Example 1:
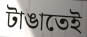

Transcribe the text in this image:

টাঙাতেই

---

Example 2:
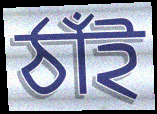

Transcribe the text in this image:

ঠাঁই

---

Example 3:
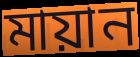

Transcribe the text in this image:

মায়ান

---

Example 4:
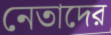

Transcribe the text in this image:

নেতাদের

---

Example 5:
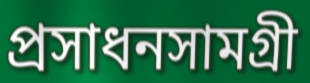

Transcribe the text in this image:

প্রসাধনসামগ্রী